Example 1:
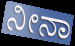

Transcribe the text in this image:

ನೀನಾ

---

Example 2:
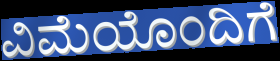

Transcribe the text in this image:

ವಿಮೆಯೊಂದಿಗೆ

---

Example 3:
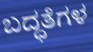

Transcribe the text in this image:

ಬದ್ಧತೆಗಳ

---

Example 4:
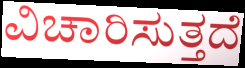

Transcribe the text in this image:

ವಿಚಾರಿಸುತ್ತದೆ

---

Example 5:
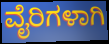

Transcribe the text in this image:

ವೈರಿಗಳಾಗಿ